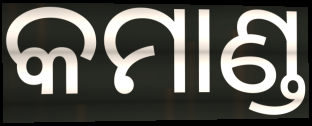
କମାଣ୍ଡ